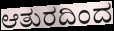
ಆತುರದಿಂದ